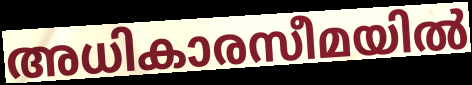
അധികാരസീമയിൽ